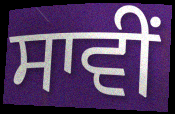
ਸਾਵੀਂ